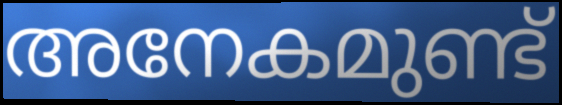
അനേകമുണ്ട്